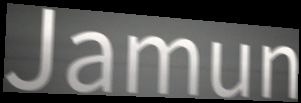
Jamun